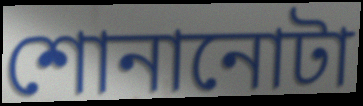
শোনানোটা